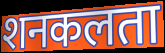
शनकलता